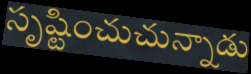
సృష్టించుచున్నాడు